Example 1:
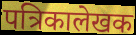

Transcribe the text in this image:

पत्रिकालेखक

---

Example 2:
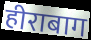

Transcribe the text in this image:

हीराबाग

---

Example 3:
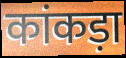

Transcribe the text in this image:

कांकड़ा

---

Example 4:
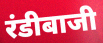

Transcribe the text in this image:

रंडीबाजी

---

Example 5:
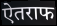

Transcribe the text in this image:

ऐतराफ